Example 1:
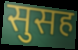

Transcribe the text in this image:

सुसह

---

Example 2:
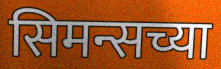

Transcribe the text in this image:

सिमन्सच्या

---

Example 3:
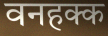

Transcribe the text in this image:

वनहक्क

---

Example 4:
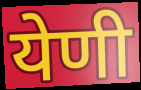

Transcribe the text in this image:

येणी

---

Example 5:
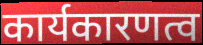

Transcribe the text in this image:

कार्यकारणत्व